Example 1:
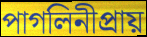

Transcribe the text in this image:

পাগলিনীপ্রায়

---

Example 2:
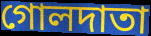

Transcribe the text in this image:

গোলদাতা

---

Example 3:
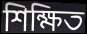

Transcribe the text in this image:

শিক্ষিত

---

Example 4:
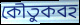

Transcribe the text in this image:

কৌতুকবহ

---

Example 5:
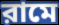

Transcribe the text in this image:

রামে